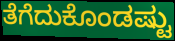
ತೆಗೆದುಕೊಂಡಷ್ಟು